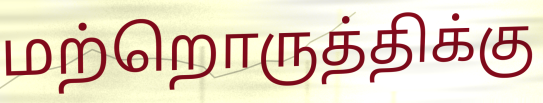
மற்றொருத்திக்கு